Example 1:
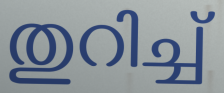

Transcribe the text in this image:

തുറിച്ച്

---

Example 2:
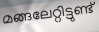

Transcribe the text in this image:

മങ്ങലേറ്റിട്ടുണ്ട്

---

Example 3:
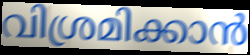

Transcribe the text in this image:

വിശ്രമിക്കാൻ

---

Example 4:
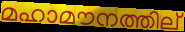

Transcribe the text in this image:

മഹാമൗനത്തില്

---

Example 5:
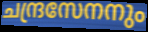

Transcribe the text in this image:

ചന്ദ്രസേനനും